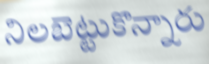
నిలబెట్టుకొన్నారు